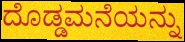
ದೊಡ್ಡಮನೆಯನ್ನು